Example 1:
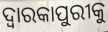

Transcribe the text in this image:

ଦ୍ୱାରକାପୁରୀକୁ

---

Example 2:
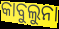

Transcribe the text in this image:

କାବୁଲୁନା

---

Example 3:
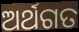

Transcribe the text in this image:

ଅର୍ଥଗତ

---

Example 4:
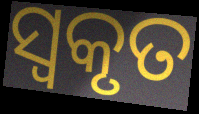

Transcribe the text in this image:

ସ୍ୱକୃତ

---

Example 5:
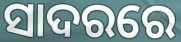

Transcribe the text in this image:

ସାଦରରେ